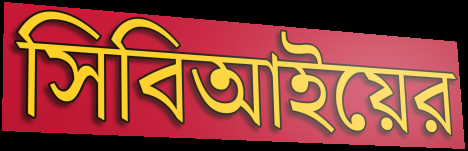
সিবিআইয়ের